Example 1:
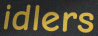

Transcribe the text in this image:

idlers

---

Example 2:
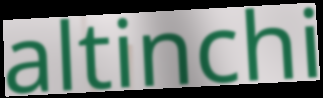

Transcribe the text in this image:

altinchi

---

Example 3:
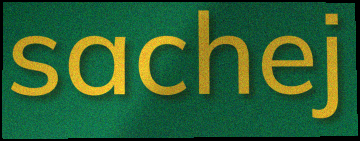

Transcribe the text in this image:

sachej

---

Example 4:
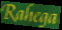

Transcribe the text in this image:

Rahega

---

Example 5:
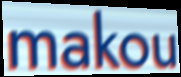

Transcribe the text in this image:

makou